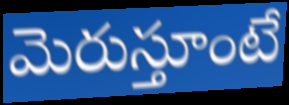
మెరుస్తూంటే